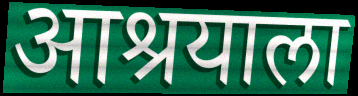
आश्रयाला